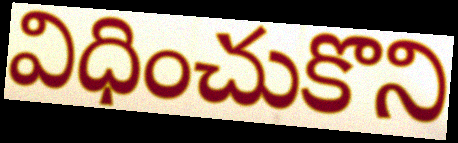
విధించుకొని